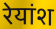
रेयांश